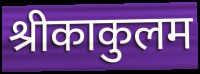
श्रीकाकुलम